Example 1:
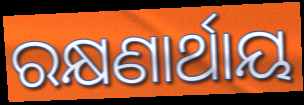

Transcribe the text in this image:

ରକ୍ଷଣାର୍ଥାୟ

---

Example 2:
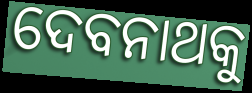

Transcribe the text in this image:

ଦେବନାଥକୁ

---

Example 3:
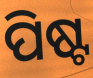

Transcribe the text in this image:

ପିଷ୍ଟ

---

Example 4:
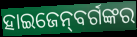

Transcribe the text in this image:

ହାଇଜେନ୍‌ବର୍ଗଙ୍କର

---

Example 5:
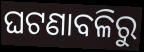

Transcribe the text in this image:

ଘଟଣାବଳିରୁ